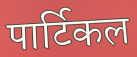
पार्टिकल